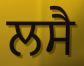
ਲਸੈ